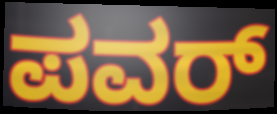
ಪವರ್